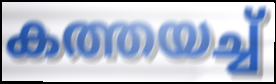
കത്തയച്ച്